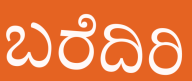
ಬರೆದಿರಿ